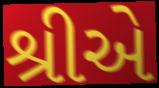
શ્રીએ